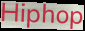
Hiphop